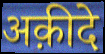
अक़ीदे